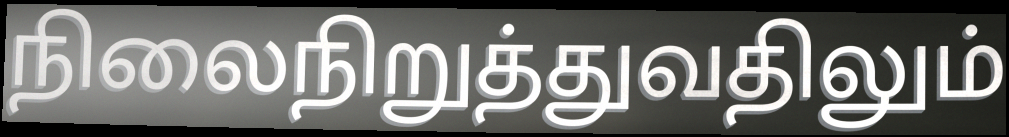
நிலைநிறுத்துவதிலும்